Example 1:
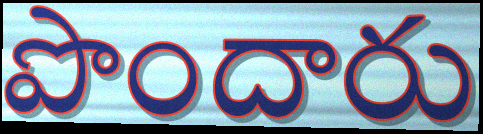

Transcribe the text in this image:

పొందారు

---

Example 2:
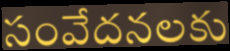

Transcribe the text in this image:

సంవేదనలకు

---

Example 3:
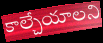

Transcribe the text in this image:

కాల్చేయాలని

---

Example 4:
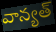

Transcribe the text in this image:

వాన్యత్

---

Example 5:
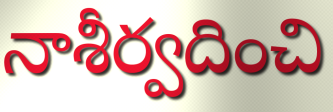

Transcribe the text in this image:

నాశీర్వదించి